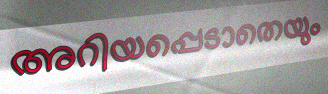
അറിയപ്പെടാതെയും